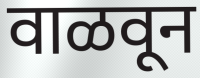
वाळवून